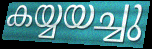
കയ്യയച്ചു